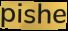
pishe